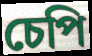
চেপি